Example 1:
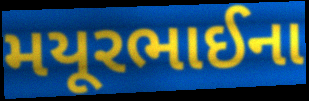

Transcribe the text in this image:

મયૂરભાઈના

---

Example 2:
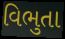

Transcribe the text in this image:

વિભુતા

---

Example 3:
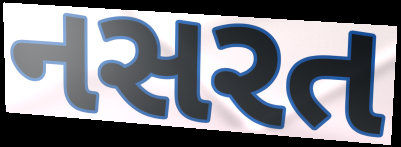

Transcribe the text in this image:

નસરત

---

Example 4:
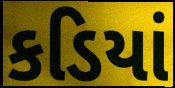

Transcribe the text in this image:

કડિયાં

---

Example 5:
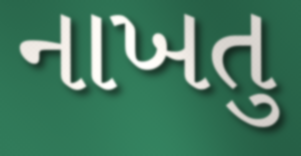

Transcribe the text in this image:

નાખતુ